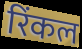
रिंकल